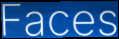
Faces